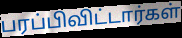
பரப்பிவிட்டார்கள்